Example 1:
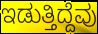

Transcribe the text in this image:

ಇಡುತ್ತಿದ್ದೆವು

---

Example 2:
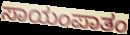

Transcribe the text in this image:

ಸಾಯಂಪಾತಂ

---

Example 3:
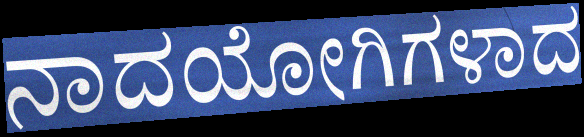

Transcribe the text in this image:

ನಾದಯೋಗಿಗಳಾದ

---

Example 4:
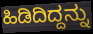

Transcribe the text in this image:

ಹಿಡಿದಿದ್ದನ್ನು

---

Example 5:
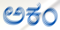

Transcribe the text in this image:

ಅಕಂ